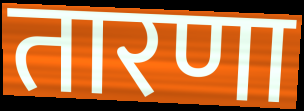
तारणा